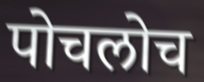
पोचलोच